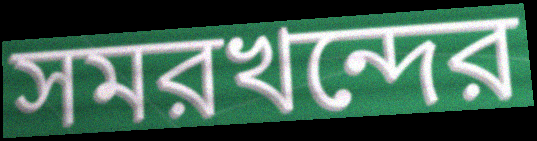
সমরখন্দের